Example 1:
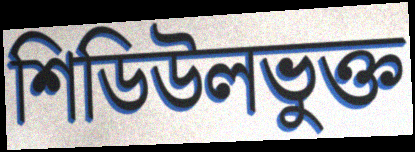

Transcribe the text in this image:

শিডিউলভুক্ত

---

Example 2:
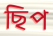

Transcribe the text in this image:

ছিপ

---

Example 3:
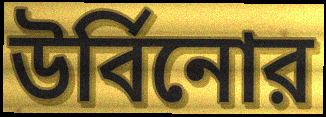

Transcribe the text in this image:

উর্বিনোর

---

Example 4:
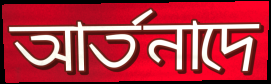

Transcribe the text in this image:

আর্তনাদে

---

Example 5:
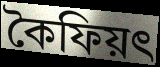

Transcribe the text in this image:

কৈফিয়ৎ